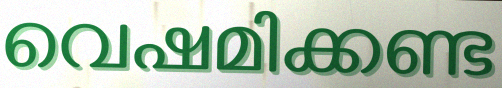
വെഷമിക്കണ്ട